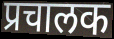
प्रचालक